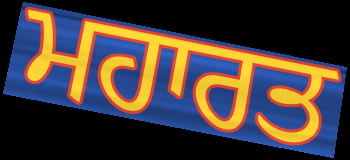
ਮਹਾਰਤ